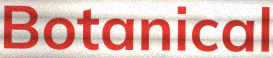
Botanical